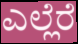
ಎಲ್ಲೆರೆ